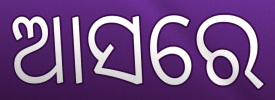
ଆସରେ